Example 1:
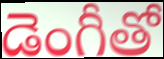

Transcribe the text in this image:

డెంగీతో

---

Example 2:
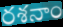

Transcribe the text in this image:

రశనాం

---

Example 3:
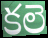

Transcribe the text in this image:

కలె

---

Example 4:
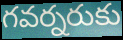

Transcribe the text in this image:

గవర్నరుకు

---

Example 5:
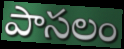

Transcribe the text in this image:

పాసలం